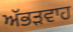
ਅੱਭੜਵਾਹ